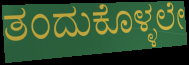
ತಂದುಕೊಳ್ಳಲೇ